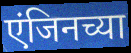
एंजिनच्या